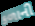
કળાની